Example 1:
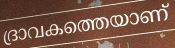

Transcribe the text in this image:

ദ്രാവകത്തെയാണ്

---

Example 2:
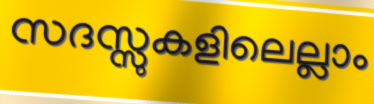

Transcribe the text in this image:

സദസ്സുകളിലെല്ലാം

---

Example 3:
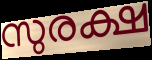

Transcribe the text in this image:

സുരക്ഷ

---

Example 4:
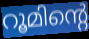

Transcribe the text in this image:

റൂമിന്റെ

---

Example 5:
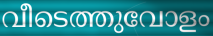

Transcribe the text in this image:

വീടെത്തുവോളം